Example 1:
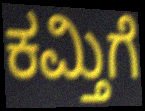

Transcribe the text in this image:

ಕಮ್ತಿಗೆ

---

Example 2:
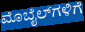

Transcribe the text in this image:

ಮೊಬೈಲ್‌ಗಳಿಗೆ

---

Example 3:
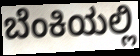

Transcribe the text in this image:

ಬೆಂಕಿಯಲ್ಲಿ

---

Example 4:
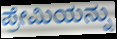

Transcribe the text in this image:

ಪ್ರೇಮಿಯನ್ನು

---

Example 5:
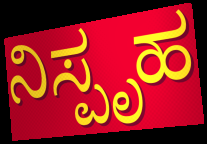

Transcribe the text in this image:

ನಿಸ್ಪೃಹ